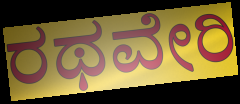
ರಥವೇರಿ